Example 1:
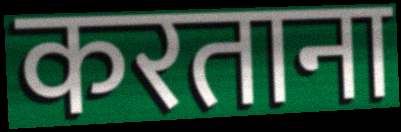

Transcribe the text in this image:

करताना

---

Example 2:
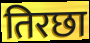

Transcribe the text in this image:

तिरछा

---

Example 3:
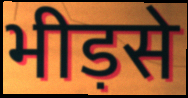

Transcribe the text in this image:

भीड़से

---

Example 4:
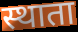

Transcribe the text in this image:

स्थाता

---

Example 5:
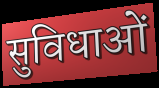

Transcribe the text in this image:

सुविधाओें